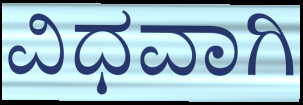
ವಿಧವಾಗಿ